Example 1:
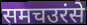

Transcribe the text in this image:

समचउरंसे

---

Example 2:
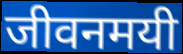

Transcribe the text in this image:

जीवनमयी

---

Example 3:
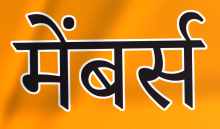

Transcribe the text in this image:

मेंबर्स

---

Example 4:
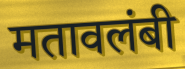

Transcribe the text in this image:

मतावलंबी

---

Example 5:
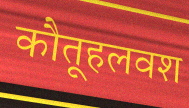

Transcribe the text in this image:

कौतूहलवश